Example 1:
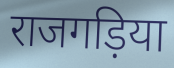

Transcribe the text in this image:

राजगड़िया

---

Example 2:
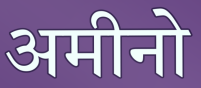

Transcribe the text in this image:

अमीनो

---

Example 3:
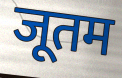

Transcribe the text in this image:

जूतम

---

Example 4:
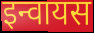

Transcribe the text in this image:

इन्वायस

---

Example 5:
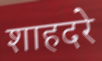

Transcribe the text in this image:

शाहदरे